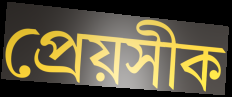
প্ৰেয়সীক